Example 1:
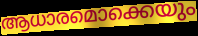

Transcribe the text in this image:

ആധാരമൊക്കെയും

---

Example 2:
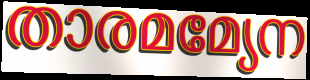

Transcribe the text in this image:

താരമമ്യേന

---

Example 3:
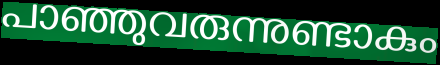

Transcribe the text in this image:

പാഞ്ഞുവരുന്നുണ്ടാകും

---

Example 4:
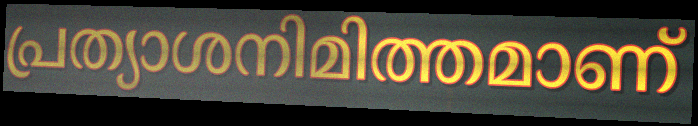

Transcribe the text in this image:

പ്രത്യാശനിമിത്തമാണ്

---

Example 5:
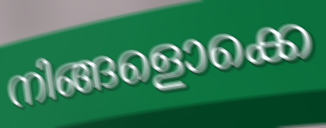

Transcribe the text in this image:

നിങ്ങളൊക്കെ